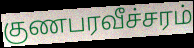
குணபரவீச்சரம்